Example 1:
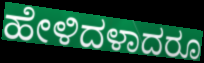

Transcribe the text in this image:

ಹೇಳಿದಳಾದರೂ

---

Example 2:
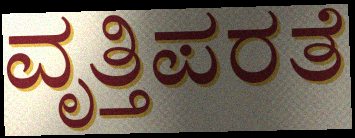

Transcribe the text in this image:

ವೃತ್ತಿಪರತೆ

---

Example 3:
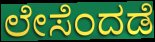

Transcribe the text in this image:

ಲೇಸೆಂದಡೆ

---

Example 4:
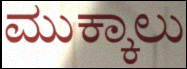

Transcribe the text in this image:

ಮುಕ್ಕಾಲು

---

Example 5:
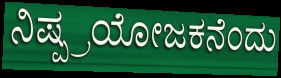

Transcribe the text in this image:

ನಿಷ್ಪ್ರಯೋಜಕನೆಂದು